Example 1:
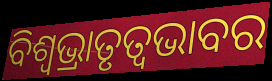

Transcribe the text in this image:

ବିଶ୍ଵଭ୍ରାତୃତ୍ୱଭାବର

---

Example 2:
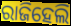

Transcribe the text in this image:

ରାଜିହେଲି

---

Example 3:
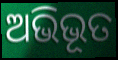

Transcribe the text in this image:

ଅଭିଭୂତ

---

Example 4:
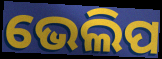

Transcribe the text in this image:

ଭେଲିପ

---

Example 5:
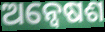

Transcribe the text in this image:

ଅନ୍ୱେଷଶ